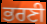
ਭਰਣੀ